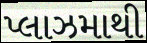
પ્લાઝમાથી